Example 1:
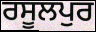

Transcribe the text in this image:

ਰਸੂਲਪੁਰ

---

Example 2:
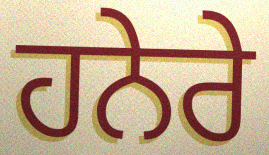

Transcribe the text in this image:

ਹਨੇਰੇ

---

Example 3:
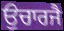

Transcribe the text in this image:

ਉਚਾਰਜੈ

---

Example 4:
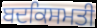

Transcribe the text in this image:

ਬਦਕਿਸਮਤੀ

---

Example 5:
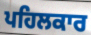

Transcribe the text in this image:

ਪਹਿਲਕਾਰ